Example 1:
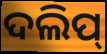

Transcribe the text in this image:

ଦଲିପ୍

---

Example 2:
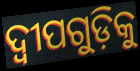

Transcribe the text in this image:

ଦ୍ୱୀପଗୁଡ଼ିକୁ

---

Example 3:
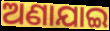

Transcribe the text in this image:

ଅଣାଯାଇ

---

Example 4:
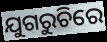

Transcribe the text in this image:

ଯୁଗରୁଚିରେ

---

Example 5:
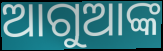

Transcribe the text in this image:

ଆଗୁଆଙ୍କ